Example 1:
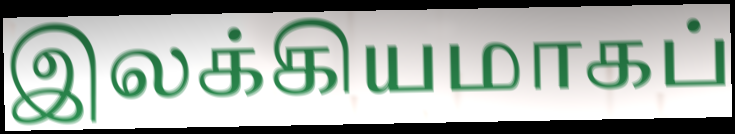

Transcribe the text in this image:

இலக்கியமாகப்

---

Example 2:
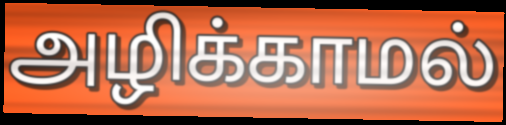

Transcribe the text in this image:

அழிக்காமல்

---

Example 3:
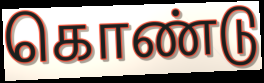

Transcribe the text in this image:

கொண்டு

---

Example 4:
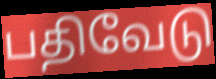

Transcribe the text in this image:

பதிவேடு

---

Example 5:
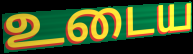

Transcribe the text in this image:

உடைய